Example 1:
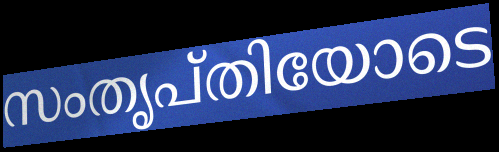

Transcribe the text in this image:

സംതൃപ്തിയോടെ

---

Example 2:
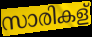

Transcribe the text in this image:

സാരികള്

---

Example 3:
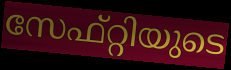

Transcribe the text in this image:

സേഫ്റ്റിയുടെ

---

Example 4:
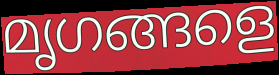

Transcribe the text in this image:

മൃഗങ്ങളെ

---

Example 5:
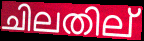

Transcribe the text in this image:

ചിലതില്